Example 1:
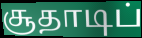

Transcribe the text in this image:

சூதாடிப்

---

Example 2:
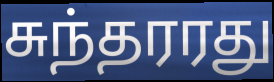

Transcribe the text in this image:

சுந்தரரது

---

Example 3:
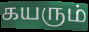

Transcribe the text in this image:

கயரும்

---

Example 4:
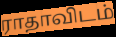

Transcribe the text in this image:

ராதாவிடம்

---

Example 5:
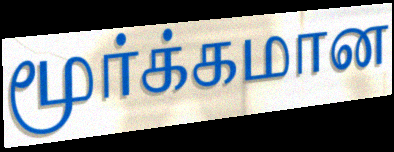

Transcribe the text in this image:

மூர்க்கமான